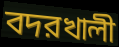
বদরখালী